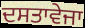
ਦਸਤਾਵੇਜਾ